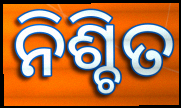
ନିଶ୍ଚିତ